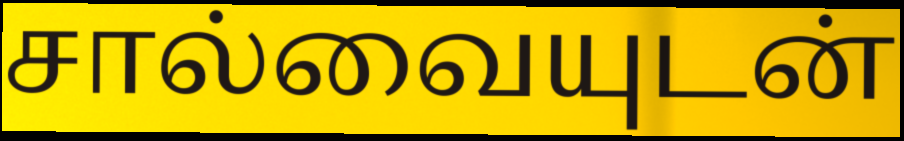
சால்வையுடன்